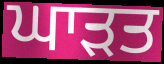
ਘਾੜਤ